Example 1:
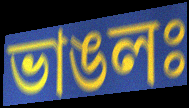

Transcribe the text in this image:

ভাঙলঃ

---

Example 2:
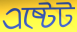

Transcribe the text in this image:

এষ্টেট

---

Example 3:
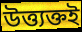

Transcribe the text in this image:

উত্ত্যক্তই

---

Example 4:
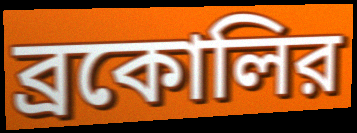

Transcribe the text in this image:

ব্রকোলির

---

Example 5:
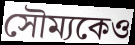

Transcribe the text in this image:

সৌম্যকেও